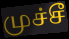
முச்சீ